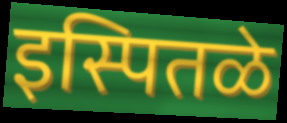
इस्पितळे